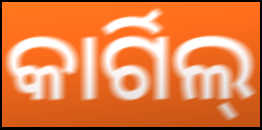
କାର୍ଗିଲ୍